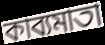
কাব্যমাতা